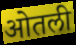
ओतली